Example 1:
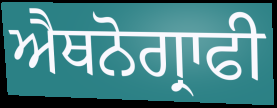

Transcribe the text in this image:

ਐਥਨੋਗ੍ਰਾਫੀ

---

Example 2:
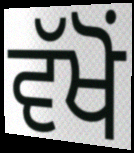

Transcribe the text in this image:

ਵੱਖੋਂ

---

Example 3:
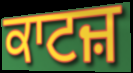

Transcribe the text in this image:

ਕਾਟਜ਼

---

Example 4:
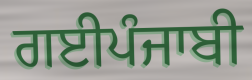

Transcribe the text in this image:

ਗਈਪੰਜਾਬੀ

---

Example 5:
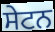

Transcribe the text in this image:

ਸੇਟਨ